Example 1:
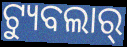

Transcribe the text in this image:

ଟ୍ୟୁବଲାର୍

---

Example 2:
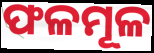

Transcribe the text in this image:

ଫଳମୂଳ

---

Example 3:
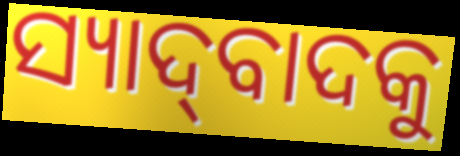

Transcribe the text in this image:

ସ୍ୟାଦ୍‌ବାଦକୁ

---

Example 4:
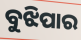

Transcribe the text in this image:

ବୁଝିପାର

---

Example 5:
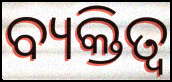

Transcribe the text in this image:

ବ୍ୟକ୍ତିତ୍ଵ